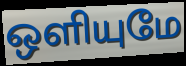
ஒளியுமே